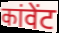
कांवेंट